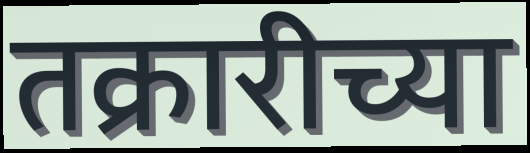
तक्रारीच्या